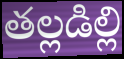
తల్లడిల్లి